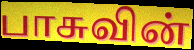
பாசுவின்